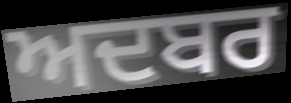
ਅਦਬਰ